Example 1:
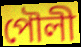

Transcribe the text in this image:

পৌলী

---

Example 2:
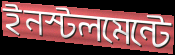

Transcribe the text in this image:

ইনস্টলমেন্টে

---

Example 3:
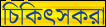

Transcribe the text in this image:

চিকিৎসকরা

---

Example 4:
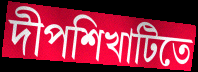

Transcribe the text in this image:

দীপশিখাটিতে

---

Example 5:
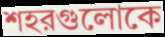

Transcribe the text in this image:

শহরগুলোকে